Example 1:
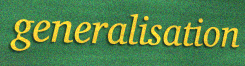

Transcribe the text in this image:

generalisation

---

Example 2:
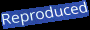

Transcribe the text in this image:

Reproduced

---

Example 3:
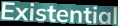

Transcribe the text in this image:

Existential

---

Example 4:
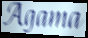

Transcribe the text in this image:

Agama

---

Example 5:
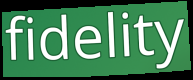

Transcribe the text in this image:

fidelity